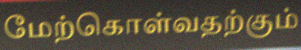
மேற்கொள்வதற்கும்